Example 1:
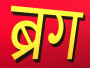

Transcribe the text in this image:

ब्रग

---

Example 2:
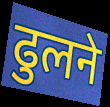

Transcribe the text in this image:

ढुलने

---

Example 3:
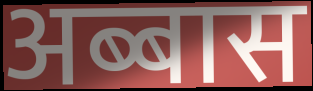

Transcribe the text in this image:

अब्बास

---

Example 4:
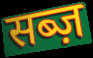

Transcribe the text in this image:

सब्ज़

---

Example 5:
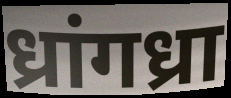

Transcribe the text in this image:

ध्रांगध्रा